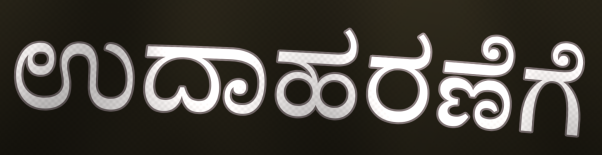
ಉದಾಹರಣೆಗೆ